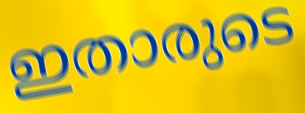
ഇതാരുടെ